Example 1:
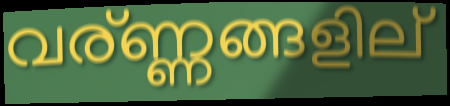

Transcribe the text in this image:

വര്ണ്ണങ്ങളില്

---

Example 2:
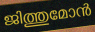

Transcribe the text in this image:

ജിത്തുമോൻ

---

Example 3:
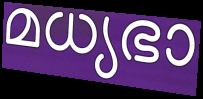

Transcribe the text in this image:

മധ്യഭാ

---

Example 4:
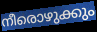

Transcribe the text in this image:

നീരൊഴുക്കും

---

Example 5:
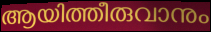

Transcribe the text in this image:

ആയിത്തീരുവാനും